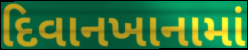
દિવાનખાનામાં